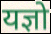
यज्ञो